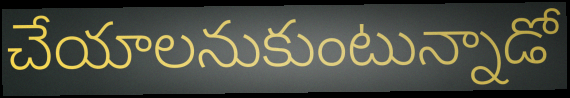
చేయాలనుకుంటున్నాడో